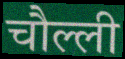
चौल्ली